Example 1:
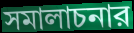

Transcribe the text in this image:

সমালাচনার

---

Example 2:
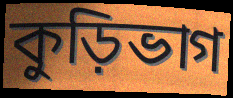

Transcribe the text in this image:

কুড়িভাগ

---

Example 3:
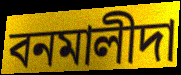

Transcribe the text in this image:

বনমালীদা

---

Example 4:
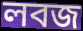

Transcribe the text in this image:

লবজ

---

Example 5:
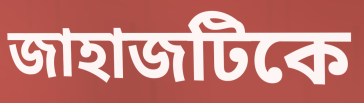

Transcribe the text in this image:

জাহাজটিকে